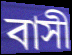
বাসী